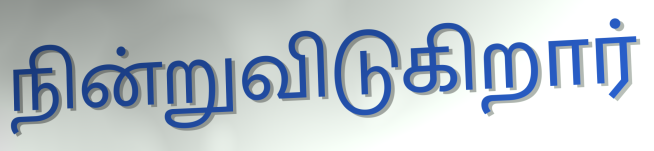
நின்றுவிடுகிறார்